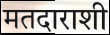
मतदाराशी